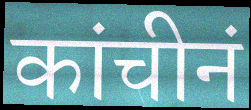
कांचीनं